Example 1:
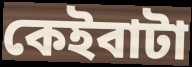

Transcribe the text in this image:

কেইবাটা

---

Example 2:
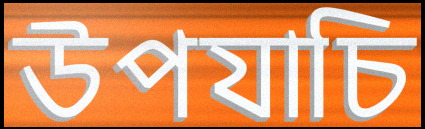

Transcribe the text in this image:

উপযাচি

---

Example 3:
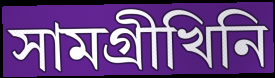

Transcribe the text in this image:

সামগ্ৰীখিনি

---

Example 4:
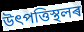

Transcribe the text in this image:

উৎপত্তিস্থলৰ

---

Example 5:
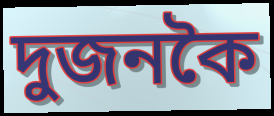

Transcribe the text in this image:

দুজনকৈ